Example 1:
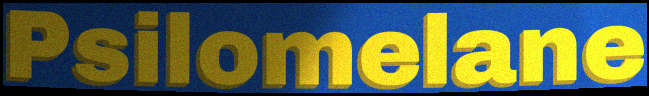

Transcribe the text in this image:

Psilomelane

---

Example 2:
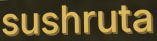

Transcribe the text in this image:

sushruta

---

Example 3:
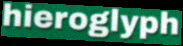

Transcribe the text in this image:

hieroglyph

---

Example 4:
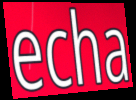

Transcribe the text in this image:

echa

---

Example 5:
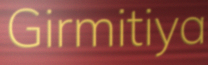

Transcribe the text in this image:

Girmitiya